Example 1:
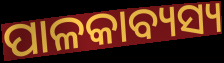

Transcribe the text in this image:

ପାଳକାବ୍ୟସ୍ୟ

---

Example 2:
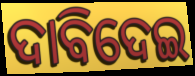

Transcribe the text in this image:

ଦାବିଦେଇ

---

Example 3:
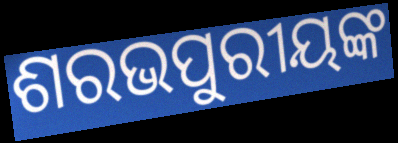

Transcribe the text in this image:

ଶରଭପୁରୀୟଙ୍କ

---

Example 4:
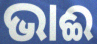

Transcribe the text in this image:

ଭାଈ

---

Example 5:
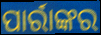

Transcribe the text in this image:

ପାର୍ରାଙ୍କର